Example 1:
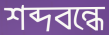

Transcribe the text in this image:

শব্দবন্ধে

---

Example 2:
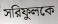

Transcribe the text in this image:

সরিফুলকে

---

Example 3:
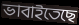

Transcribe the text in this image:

ভাবাইতেছে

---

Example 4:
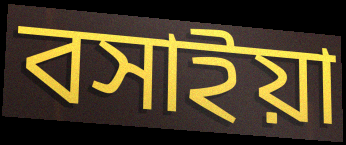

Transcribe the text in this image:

বসাইয়া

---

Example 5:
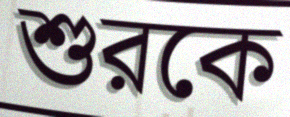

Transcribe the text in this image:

শুরকে